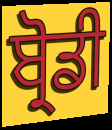
ਬ੍ਰੋਡੀ